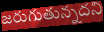
జరుగుతున్నదని